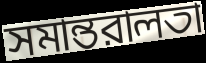
সমান্তরালতা